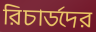
রিচার্ডদের